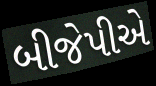
બીજેપીએ